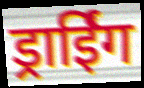
ड्राईिंग